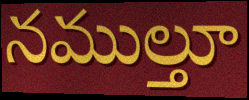
నముల్తూ